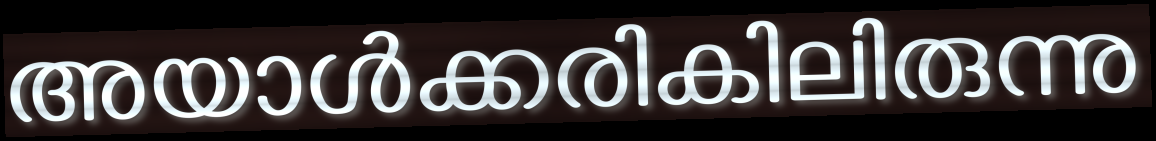
അയാൾക്കരികിലിരുന്നു